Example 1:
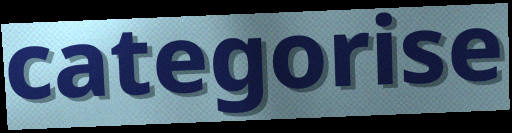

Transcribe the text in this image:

categorise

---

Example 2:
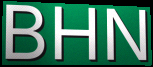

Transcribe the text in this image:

BHN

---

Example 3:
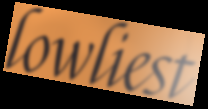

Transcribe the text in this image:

lowliest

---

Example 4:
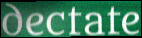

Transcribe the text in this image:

dectate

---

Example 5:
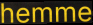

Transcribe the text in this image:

hemme